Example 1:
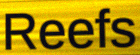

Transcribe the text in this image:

Reefs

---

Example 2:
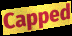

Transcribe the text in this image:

Capped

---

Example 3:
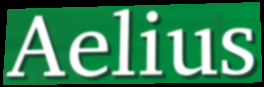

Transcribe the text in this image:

Aelius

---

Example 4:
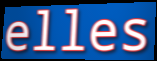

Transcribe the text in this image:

elles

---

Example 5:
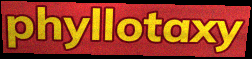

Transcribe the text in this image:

phyllotaxy